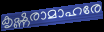
കൃഷ്ണരാമാഹരേ